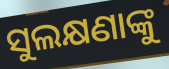
ସୁଲକ୍ଷଣାଙ୍କୁ